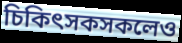
চিকিৎসকসকলেও